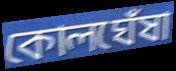
কোলঘেঁষা